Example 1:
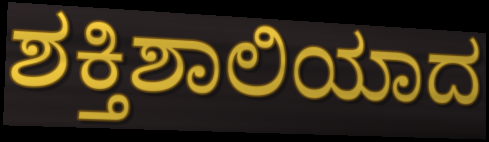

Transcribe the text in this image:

ಶಕ್ತಿಶಾಲಿಯಾದ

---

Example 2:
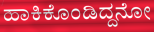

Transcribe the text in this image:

ಹಾಕಿಕೊಂಡಿದ್ದನೋ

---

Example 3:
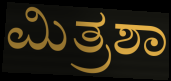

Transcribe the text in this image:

ಮಿತ್ರಶಾ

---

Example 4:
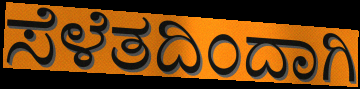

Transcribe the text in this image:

ಸೆಳೆತದಿಂದಾಗಿ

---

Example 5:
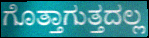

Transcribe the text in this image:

ಗೊತ್ತಾಗುತ್ತದಲ್ಲ